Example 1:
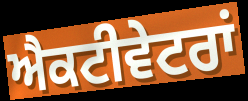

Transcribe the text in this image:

ਐਕਟੀਵੇਟਰਾਂ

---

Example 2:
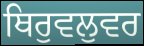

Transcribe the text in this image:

ਥਿਰੁਵਲੁਵਰ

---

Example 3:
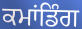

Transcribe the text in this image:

ਕਮਾਂਡਿੰਗ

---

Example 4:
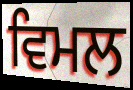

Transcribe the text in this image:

ਵਿਮਲ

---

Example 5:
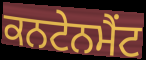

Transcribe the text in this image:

ਕਨਟੇਨਮੈਂਟ